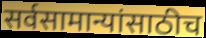
सर्वसामान्यांसाठीच